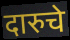
दारुचे